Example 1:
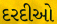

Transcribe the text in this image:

દરદીઓ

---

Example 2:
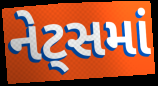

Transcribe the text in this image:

નેટ્સમાં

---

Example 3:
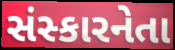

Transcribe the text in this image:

સંસ્કારનેતા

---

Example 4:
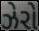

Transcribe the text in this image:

ઝેરો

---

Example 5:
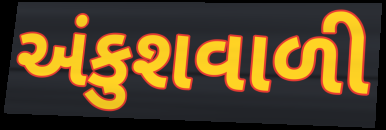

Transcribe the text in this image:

અંકુશવાળી